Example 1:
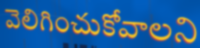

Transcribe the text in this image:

వెలిగించుకోవాలని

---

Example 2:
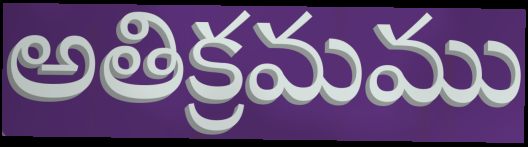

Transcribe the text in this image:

అతిక్రమము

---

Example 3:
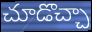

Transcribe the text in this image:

చూడొచ్చా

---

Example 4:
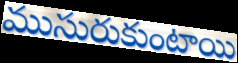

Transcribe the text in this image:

ముసురుకుంటాయి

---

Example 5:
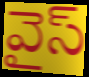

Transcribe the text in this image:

వైస్